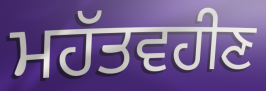
ਮਹੱਤਵਹੀਣ